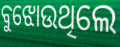
ବୁଝୋଉଥିଲେ